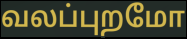
வலப்புறமோ